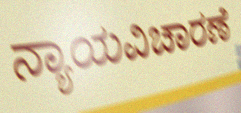
ನ್ಯಾಯವಿಚಾರಣೆ